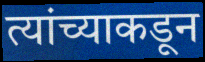
त्यांच्याकडून